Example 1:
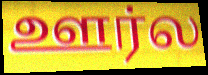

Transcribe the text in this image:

ஊர்ல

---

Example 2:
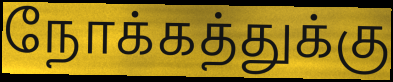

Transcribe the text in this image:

நோக்கத்துக்கு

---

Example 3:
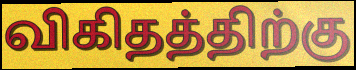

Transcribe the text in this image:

விகிதத்திற்கு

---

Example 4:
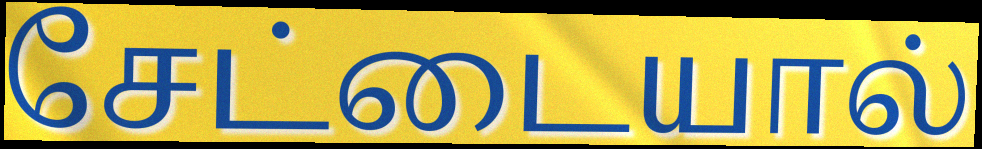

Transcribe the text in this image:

சேட்டையால்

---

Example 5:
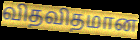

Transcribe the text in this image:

விதவிதமான